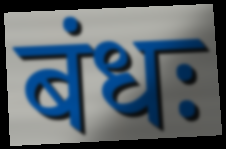
बंधः